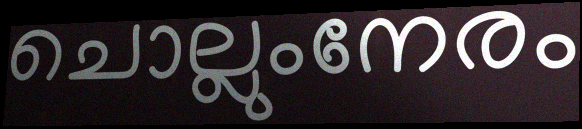
ചൊല്ലുംനേരം